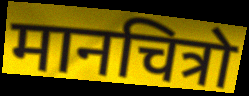
मानचित्रो